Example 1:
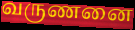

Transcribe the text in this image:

வருணனை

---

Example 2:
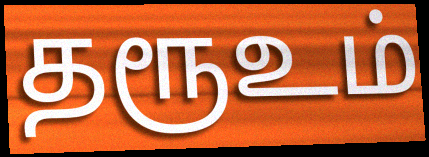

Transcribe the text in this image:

தரூஉம்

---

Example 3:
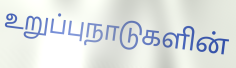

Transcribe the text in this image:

உறுப்புநாடுகளின்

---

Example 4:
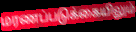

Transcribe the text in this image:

மரணப்படுக்கையிலும்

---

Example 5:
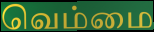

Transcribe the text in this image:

வெம்மை